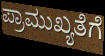
ಪ್ರಾಮುಖ್ಯತೆಗೆ